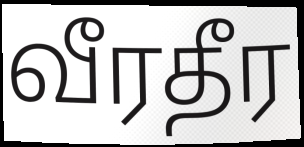
வீரதீர